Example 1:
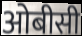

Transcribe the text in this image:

ओबीसी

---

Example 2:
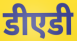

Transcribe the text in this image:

डीएडी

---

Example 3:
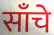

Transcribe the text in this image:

साँचे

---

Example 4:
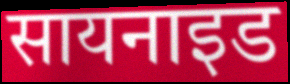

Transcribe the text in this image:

सायनाइड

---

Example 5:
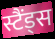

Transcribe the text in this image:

स्टैंड्स